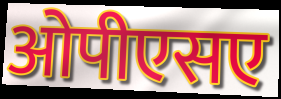
ओपीएसए